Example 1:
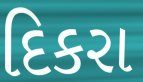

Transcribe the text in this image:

દિકરા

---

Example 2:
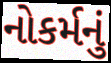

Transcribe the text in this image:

નોકર્મનું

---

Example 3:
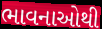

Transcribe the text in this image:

ભાવનાઓથી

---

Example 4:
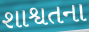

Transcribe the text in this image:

શાશ્વતના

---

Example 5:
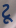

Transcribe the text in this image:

ટૂ